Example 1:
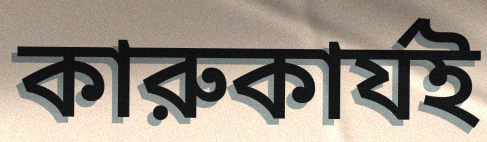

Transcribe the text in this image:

কারুকার্যই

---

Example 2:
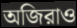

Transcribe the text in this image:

অজিরাও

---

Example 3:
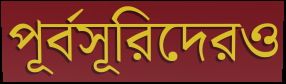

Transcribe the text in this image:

পূর্বসূরিদেরও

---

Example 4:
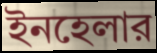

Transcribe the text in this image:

ইনহেলার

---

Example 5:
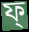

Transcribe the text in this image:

ফ্